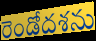
రెండోదశను